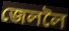
জেললৈ